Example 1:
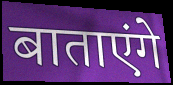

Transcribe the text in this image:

बाताएंगे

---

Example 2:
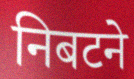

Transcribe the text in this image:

निबटने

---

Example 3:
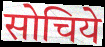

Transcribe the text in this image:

सोचिये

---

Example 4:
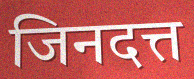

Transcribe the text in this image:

जिनदत्त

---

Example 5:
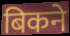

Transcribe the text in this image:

बिकने